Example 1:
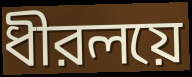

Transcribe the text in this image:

ধীরলয়ে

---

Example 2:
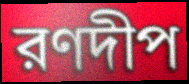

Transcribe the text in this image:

রণদীপ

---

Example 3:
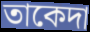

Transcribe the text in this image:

তাকেদা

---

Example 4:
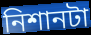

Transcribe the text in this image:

নিশানটা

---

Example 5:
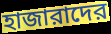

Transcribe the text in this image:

হাজারাদের